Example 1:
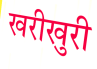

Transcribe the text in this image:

खरीखुरी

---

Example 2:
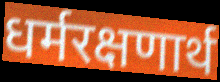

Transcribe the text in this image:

धर्मरक्षणार्थ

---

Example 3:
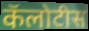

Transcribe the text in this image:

कॅलोटीस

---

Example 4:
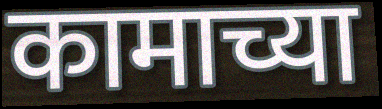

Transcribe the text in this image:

कामाच्या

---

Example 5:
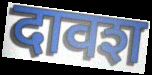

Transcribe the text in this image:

दावश